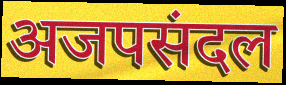
अजपसंदल